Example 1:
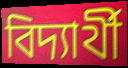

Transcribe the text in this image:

বিদ্যার্থী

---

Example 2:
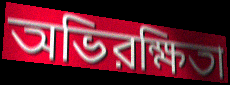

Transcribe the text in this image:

অভিরক্ষিতা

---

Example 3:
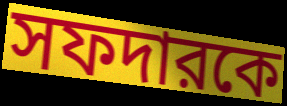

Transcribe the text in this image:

সফদারকে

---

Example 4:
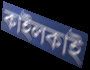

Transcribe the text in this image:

কাইলকাই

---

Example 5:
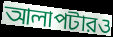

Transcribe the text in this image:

আলাপটারও